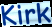
Kirk